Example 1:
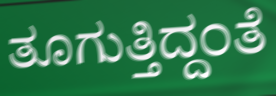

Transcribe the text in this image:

ತೂಗುತ್ತಿದ್ದಂತೆ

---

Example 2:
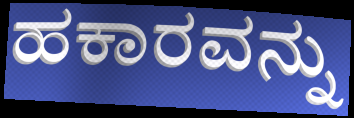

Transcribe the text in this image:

ಹಕಾರವನ್ನು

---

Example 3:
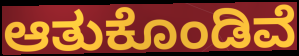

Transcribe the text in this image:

ಆತುಕೊಂಡಿವೆ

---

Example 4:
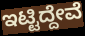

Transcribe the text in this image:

ಇಟ್ಟಿದ್ದೇವೆ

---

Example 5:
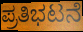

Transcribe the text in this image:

ಪ್ರತಿಭಟನೆ